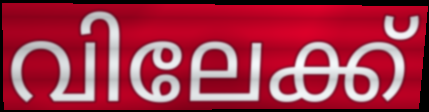
വിലേക്ക്